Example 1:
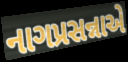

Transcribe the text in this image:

નાગપ્રસન્નાએ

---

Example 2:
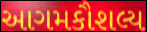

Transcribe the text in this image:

આગમકૌશલ્ય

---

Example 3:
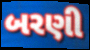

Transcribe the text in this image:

બરણી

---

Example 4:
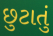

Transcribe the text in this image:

છુટાતું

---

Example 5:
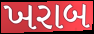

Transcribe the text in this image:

ખરાબ